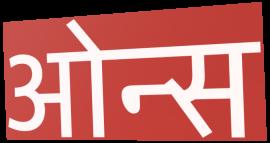
ओन्स